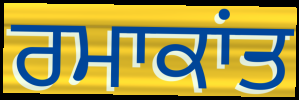
ਰਮਾਕਾਂਤ